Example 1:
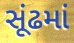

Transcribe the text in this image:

સૂંઢમાં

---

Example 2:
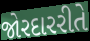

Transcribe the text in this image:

જોરદારરીતે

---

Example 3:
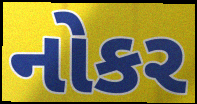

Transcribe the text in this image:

નોકર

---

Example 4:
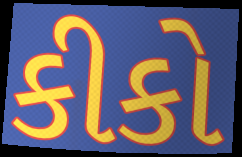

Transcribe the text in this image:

કીકો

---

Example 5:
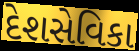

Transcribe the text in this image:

દેશસેવિકા